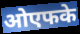
ओएफके